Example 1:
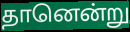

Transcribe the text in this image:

தானென்று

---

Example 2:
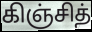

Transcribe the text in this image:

கிஞ்சித்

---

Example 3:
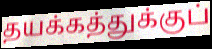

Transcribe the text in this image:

தயக்கத்துக்குப்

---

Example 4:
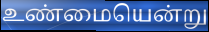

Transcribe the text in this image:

உண்மையென்று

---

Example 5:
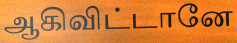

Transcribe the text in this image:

ஆகிவிட்டானே